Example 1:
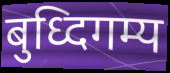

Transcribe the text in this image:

बुध्दिगम्य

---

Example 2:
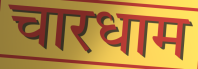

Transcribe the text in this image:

चारधाम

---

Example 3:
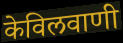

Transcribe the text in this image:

केविलवाणी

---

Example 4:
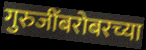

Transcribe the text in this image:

गुरुजींबरोबरच्या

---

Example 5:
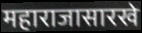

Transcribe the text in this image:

महाराजासारखे